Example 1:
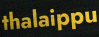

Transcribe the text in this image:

thalaippu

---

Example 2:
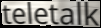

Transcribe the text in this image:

teletalk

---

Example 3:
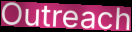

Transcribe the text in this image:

Outreach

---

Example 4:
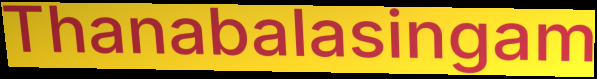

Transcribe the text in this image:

Thanabalasingam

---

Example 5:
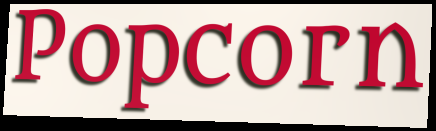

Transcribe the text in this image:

Popcorn